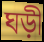
ঘড়ী